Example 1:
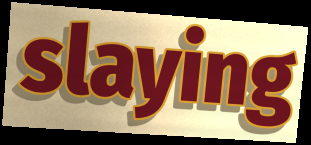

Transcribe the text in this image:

slaying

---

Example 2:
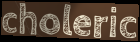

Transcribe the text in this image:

choleric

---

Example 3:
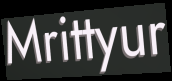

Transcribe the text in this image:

Mrittyur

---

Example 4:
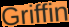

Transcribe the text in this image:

Griffin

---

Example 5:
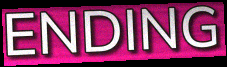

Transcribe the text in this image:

ENDING